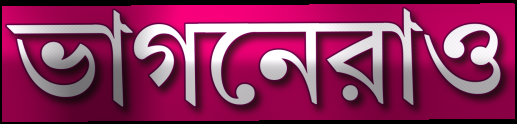
ভাগনেরাও